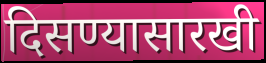
दिसण्यासारखी